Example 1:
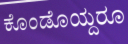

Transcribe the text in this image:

ಕೊಂಡೊಯ್ದರೂ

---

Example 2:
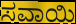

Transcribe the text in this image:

ಸವಾಯಿ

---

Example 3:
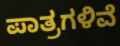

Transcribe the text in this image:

ಪಾತ್ರಗಳಿವೆ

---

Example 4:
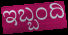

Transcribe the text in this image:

ಇಬ್ಬಂದಿ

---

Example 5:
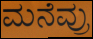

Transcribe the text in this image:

ಮನೆವ್ರು